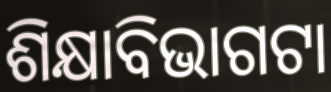
ଶିକ୍ଷାବିଭାଗଟା